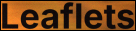
Leaflets